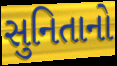
સુનિતાનો